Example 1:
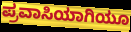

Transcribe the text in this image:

ಪ್ರವಾಸಿಯಾಗಿಯೂ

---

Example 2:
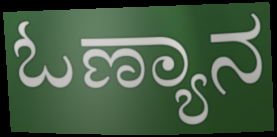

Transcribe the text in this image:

ಓಣ್ಯಾನ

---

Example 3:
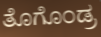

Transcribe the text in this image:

ತೊಗೊಂಡ್ರ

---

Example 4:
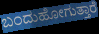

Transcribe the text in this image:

ಬಂದುಹೋಗುತ್ತಾರೆ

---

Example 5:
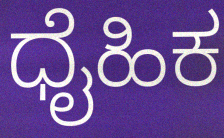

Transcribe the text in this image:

ಧೈಹಿಕ